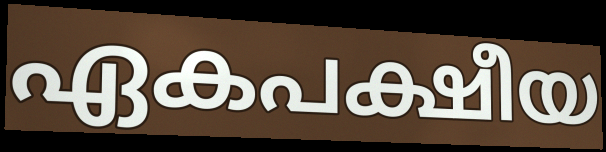
ഏകപക്ഷീയ